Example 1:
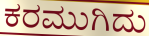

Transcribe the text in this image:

ಕರಮುಗಿದು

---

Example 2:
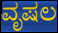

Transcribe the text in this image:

ವೃಷಲ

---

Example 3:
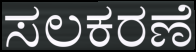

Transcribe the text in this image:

ಸಲಕರಣೆ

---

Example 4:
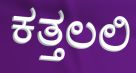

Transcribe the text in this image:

ಕತ್ತಲಲಿ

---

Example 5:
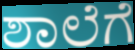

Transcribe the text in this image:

ಶಾಲೆಗೆ